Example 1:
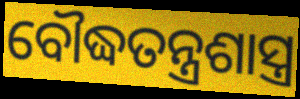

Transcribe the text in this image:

ବୌଦ୍ଧତନ୍ତ୍ରଶାସ୍ତ୍ର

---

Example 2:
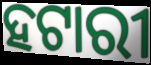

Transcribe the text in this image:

ହଟାରୀ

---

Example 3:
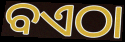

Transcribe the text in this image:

ବଏଠା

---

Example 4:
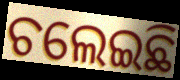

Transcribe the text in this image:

ଚଲେଇଛି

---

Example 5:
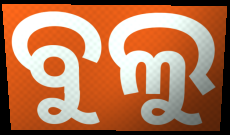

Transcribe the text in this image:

ବୁଲୁ